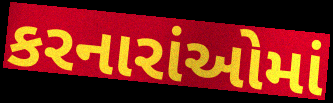
કરનારાંઓમાં